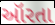
ઑરતા